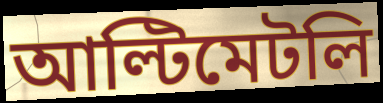
আল্টিমেটলি